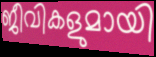
ജീവികളുമായി